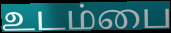
உடம்பை